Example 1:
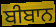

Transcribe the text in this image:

ਬੀਬਾਨ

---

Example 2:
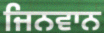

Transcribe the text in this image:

ਜਿਨਵਾਨ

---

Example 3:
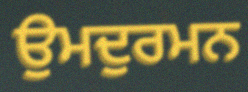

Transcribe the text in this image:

ਉਮਦੁਰਮਨ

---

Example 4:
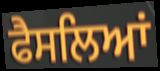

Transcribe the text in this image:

ਫੈਸਲਿਆਂ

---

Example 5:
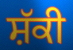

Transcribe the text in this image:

ਸ਼ੱਕੀ